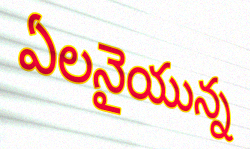
ఏలనైయున్న